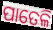
ପାତେଳି